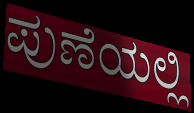
ಪುಣೆಯಲ್ಲಿ